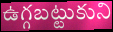
ఉగ్గబట్టుకుని